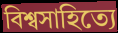
বিশ্বসাহিত্যে